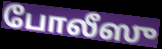
போலீஸு